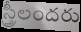
స్త్రీలందరు